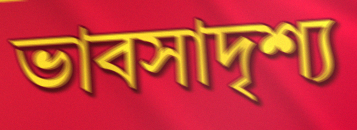
ভাবসাদৃশ্য